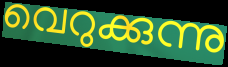
വെറുക്കുന്നു